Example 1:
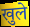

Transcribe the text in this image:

खुले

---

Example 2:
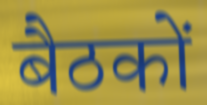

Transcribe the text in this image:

बैठकों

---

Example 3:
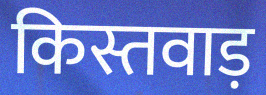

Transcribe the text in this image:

किस्तवाड़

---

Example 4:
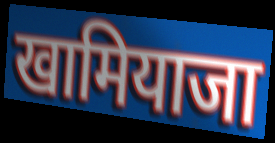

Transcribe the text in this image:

खामियाजा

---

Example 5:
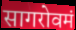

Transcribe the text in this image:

सागरोवमं